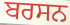
ਬਰਸਨ